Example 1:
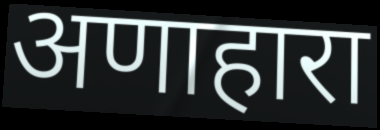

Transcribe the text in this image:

अणाहारा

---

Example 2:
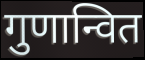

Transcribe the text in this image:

गुणान्वित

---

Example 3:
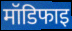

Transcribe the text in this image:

मॉडिफाइ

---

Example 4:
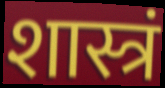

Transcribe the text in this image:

शास्त्रं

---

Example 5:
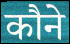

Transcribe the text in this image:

कौने